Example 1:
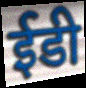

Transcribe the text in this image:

ईडी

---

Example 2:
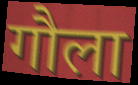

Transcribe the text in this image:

गौला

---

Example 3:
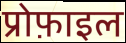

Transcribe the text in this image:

प्रोफ़ाइल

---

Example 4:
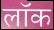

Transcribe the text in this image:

लॉक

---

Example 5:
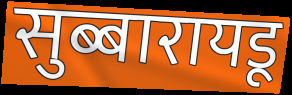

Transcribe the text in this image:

सुब्बारायडू